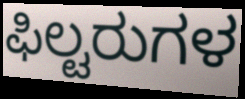
ಫಿಲ್ಟರುಗಳ